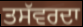
ਤਸੱਵਰਦਾ